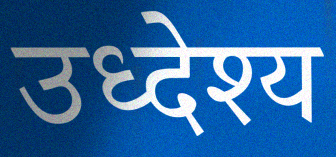
उध्देश्य